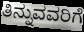
ತಿನ್ನುವವರಿಗೆ